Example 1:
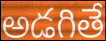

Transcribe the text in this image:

అడగితే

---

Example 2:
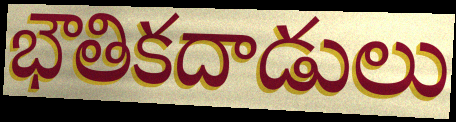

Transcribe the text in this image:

భౌతికదాడులు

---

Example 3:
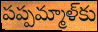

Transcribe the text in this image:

పప్పమ్మాళ్‌కు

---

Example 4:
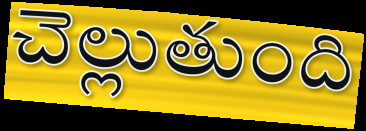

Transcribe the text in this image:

చెల్లుతుంది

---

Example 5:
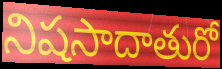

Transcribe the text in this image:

నిషసాదాతురో